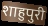
शाहुपुरी